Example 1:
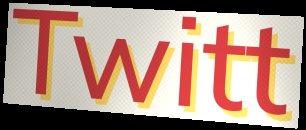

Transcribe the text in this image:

Twitt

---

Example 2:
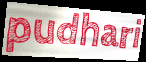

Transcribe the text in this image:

pudhari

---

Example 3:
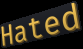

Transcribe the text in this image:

Hated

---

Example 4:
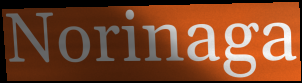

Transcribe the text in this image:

Norinaga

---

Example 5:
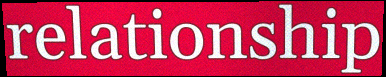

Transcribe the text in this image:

relationship